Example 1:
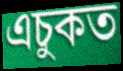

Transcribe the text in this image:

এচুকত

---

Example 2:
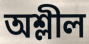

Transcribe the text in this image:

অশ্লীল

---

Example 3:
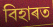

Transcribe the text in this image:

বিহাৰত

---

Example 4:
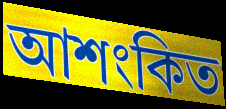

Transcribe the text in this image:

আশংকিত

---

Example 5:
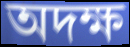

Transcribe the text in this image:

অদক্ষ